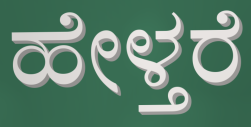
ಹೇಳ್ತರೆ